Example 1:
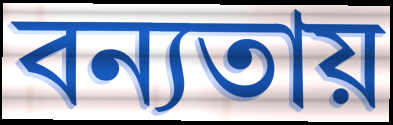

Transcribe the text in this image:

বন্যতায়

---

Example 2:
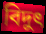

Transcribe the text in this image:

বিদুৎ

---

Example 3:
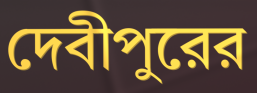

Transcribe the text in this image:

দেবীপুরের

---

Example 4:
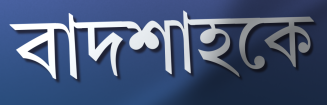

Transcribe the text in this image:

বাদশাহকে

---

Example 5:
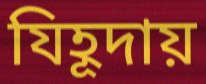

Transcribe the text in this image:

যিহূদায়